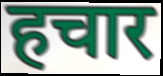
हचार